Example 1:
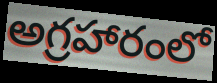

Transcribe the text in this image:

అగ్రహారంలో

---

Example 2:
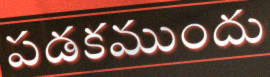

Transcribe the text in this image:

పడకముందు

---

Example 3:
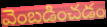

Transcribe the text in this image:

వెంబడించడం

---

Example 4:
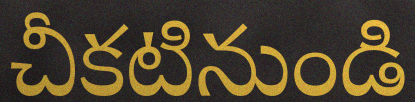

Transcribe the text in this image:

చీకటినుండి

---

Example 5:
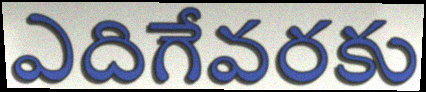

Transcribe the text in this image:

ఎదిగేవరకు